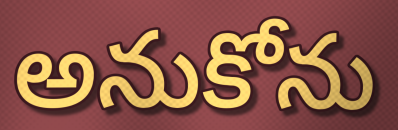
అనుకోను